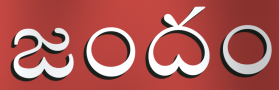
జందం